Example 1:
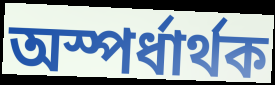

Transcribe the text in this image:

অস্পৰ্ধাৰ্থক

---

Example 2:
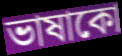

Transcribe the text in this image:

ভাষাকো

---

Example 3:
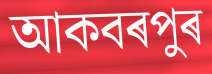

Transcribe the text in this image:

আকবৰপুৰ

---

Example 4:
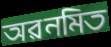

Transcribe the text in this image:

অৱনমিত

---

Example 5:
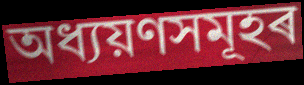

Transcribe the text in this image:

অধ্যয়ণসমূহৰ